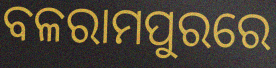
ବଳରାମପୁରରେ